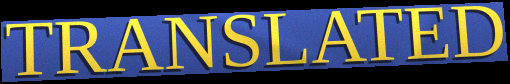
TRANSLATED